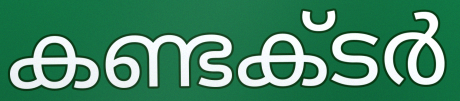
കണ്ടക്‌ടർ